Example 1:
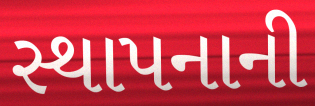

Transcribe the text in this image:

સ્થાપનાની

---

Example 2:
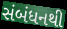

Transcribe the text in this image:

સંબંધનથી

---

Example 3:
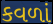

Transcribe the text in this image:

કવળાં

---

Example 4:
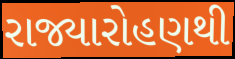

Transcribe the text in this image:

રાજ્યારોહણથી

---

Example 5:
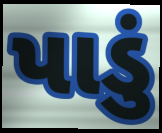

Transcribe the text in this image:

પાડું